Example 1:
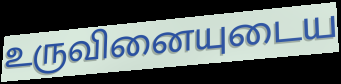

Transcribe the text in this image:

உருவினையுடைய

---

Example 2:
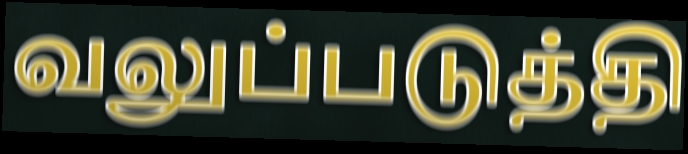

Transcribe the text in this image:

வலுப்படுத்தி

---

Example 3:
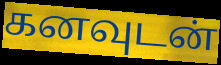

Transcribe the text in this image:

கனவுடன்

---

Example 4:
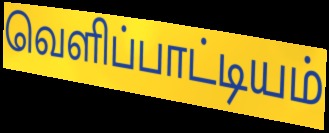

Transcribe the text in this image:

வெளிப்பாட்டியம்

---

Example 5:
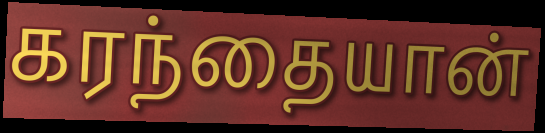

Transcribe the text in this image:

கரந்தையான்